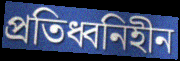
প্রতিধ্বনিহীন